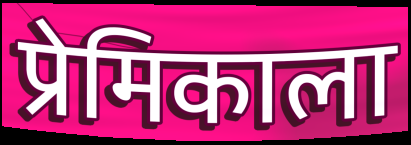
प्रेमिकाला